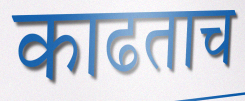
काढताच